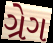
ગ્રેગ